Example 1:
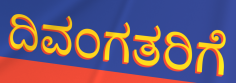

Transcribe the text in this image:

ದಿವಂಗತರಿಗೆ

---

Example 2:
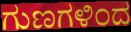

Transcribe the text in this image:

ಗುಣಗಳಿಂದ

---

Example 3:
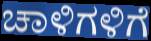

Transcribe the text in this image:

ಚಾಳಿಗಳಿಗೆ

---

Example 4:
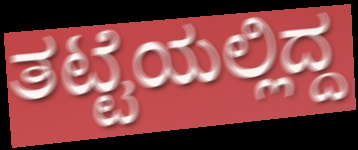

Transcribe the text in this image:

ತಟ್ಟೆಯಲ್ಲಿದ್ದ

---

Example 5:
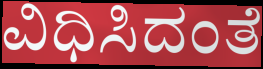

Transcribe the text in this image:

ವಿಧಿಸಿದಂತೆ